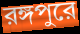
রঙ্গপুরে